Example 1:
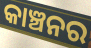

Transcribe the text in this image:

କାଞ୍ଚନର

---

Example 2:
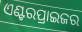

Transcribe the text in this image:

ଏଣ୍ଟରପ୍ରାଇଜର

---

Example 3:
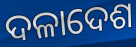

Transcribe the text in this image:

ଦଳାଦେଶ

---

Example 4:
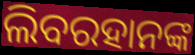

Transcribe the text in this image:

ଲିବରହାନଙ୍କ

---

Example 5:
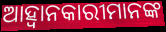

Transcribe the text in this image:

ଆହ୍ଵାନକାରୀମାନଙ୍କ